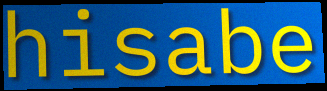
hisabe